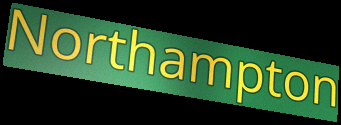
Northampton